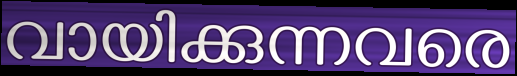
വായിക്കുന്നവരെ